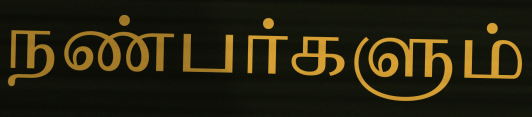
நண்பர்களும்